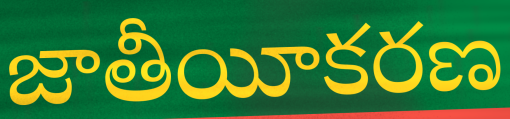
జాతీయీకరణ